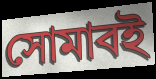
সোমাবই